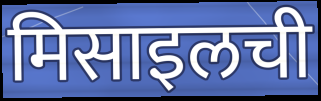
मिसाइलची